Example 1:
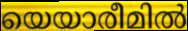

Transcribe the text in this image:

യെയാരീമിൽ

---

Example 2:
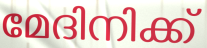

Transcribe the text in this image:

മേദിനിക്ക്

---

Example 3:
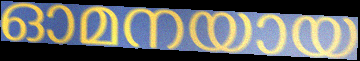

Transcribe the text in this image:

ഓമനയായ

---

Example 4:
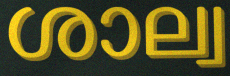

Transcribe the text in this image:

ശാല്വ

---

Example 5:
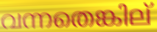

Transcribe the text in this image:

വന്നതെങ്കില്